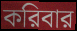
করিবার